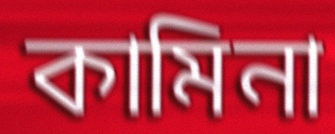
কামিনা